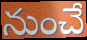
నుంచే